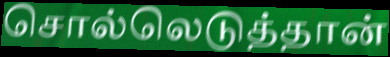
சொல்லெடுத்தான்